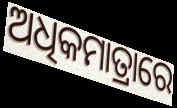
ଅଧିକମାତ୍ରାରେ